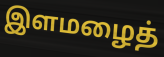
இளமழைத்